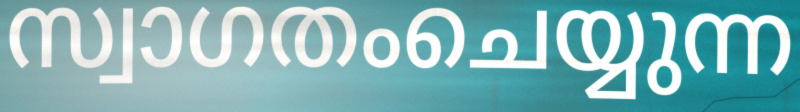
സ്വാഗതംചെയ്യുന്ന